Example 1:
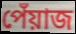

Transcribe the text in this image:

পেঁয়াজ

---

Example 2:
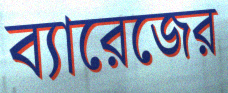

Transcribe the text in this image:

ব্যারেজের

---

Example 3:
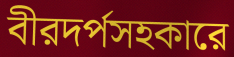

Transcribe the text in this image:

বীরদর্পসহকারে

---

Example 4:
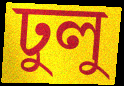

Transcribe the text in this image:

ঢুলু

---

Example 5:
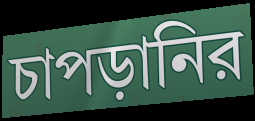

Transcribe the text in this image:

চাপড়ানির